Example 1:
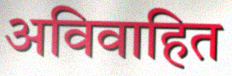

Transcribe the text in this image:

अविवाहित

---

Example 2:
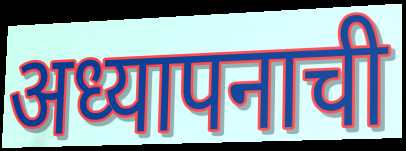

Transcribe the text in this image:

अध्यापनाची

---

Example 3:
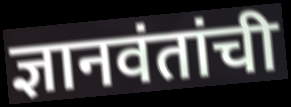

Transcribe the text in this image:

ज्ञानवंतांची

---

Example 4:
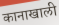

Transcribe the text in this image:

कानाखाली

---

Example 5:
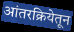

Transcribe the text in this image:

आंतरक्रियेतून